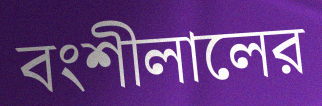
বংশীলালের